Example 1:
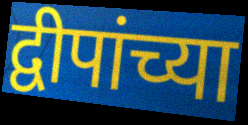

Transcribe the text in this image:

द्वीपांच्या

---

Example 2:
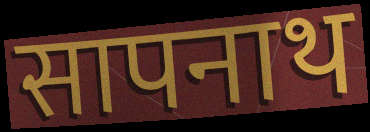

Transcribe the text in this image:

सापनाथ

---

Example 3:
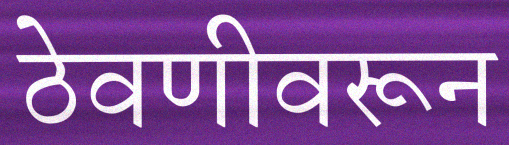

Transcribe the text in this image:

ठेवणीवरून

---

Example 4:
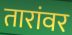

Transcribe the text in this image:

तारांवर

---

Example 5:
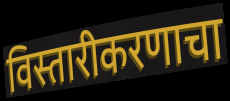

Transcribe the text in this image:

विस्तारीकरणाचा